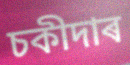
চকীদাৰ